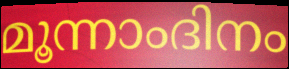
മൂന്നാംദിനം